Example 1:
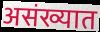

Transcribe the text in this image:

असंख्यात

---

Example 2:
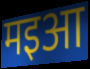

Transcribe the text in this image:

मइआ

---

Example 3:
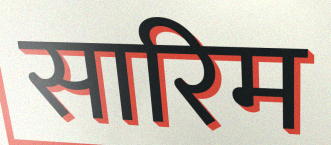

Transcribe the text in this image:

सारिम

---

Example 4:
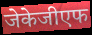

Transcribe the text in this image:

जेकेजीएफ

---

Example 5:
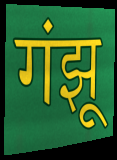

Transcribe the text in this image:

गंझू